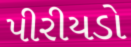
પીરીયડો